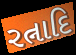
રત્નાદિ